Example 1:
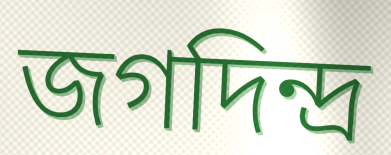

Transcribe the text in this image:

জগদিন্দ্র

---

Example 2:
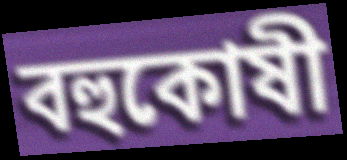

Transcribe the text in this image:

বহুকোষী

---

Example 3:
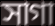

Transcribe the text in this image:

সাগা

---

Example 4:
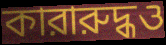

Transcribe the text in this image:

কারারুদ্ধও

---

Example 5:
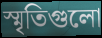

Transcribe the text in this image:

স্মৃতিগুলো